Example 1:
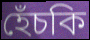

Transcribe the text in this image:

হেঁচকি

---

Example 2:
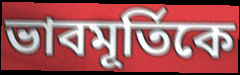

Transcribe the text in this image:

ভাবমূর্তিকে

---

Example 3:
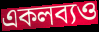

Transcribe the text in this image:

একলব্যও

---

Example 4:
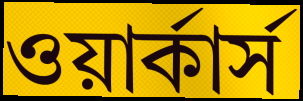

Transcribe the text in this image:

ওয়ার্কার্স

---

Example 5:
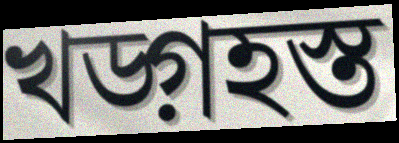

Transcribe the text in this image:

খড়্গহস্ত